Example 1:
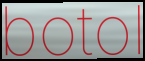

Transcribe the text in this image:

botol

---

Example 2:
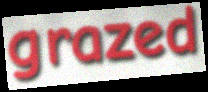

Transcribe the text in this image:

grazed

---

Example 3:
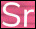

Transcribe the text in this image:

Sr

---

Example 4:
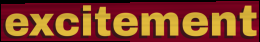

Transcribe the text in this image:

excitement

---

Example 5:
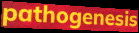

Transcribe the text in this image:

pathogenesis